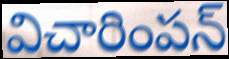
విచారింపన్